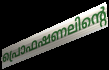
പ്രൊഫഷണലിന്റെ